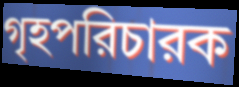
গৃহপরিচারক